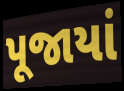
પૂજાયાં